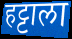
हट्टाला